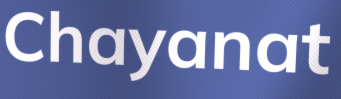
Chayanat